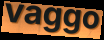
vaggo